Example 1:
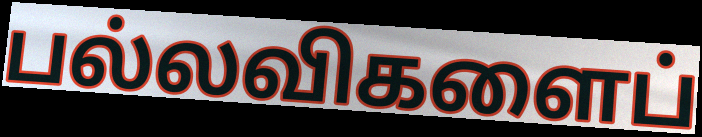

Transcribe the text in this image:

பல்லவிகளைப்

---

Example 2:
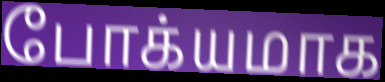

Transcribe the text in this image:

போக்யமாக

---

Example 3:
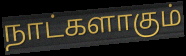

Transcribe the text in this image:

நாட்களாகும்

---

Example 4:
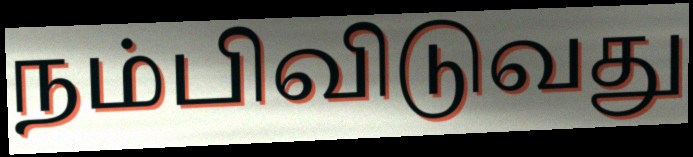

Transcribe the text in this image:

நம்பிவிடுவது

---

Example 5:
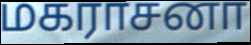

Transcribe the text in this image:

மகராசனா